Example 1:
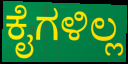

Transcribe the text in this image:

ಕೈಗಳಿಲ್ಲ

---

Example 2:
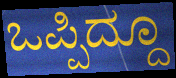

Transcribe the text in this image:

ಒಪ್ಪಿದ್ದೂ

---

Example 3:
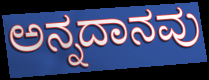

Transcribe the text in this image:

ಅನ್ನದಾನವು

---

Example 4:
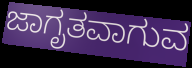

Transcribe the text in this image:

ಜಾಗೃತವಾಗುವ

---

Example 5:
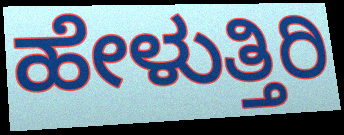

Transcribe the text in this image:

ಹೇಳುತ್ತಿರಿ